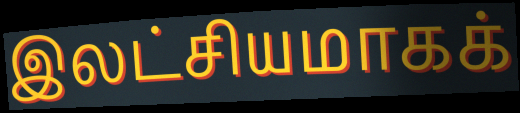
இலட்சியமாகக்